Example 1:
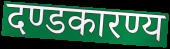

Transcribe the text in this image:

दण्डकारण्य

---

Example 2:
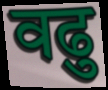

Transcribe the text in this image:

वढु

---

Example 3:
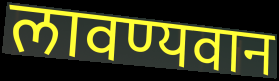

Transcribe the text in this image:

लावण्यवान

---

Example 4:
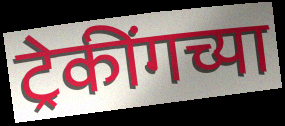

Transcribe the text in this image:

ट्रेकींगच्या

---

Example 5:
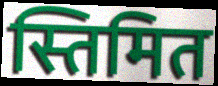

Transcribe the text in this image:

स्तिमित